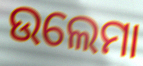
ଉଲେମା